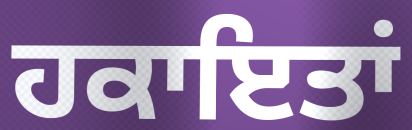
ਹਕਾਇਤਾਂ